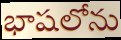
భాషలోను